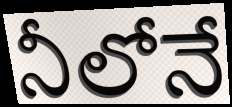
నీలోనే